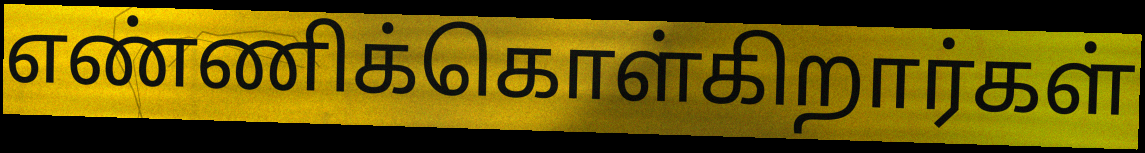
எண்ணிக்கொள்கிறார்கள்